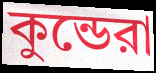
কুন্ডেরা